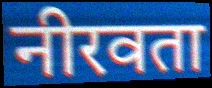
नीरवता